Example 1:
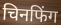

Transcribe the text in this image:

चिनफिंग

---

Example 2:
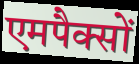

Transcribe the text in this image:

एमपैक्सों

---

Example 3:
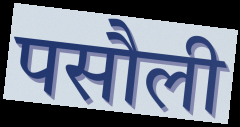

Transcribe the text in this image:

पसौली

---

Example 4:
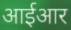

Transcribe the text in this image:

आईआर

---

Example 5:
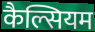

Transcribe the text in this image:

कैल्सियम